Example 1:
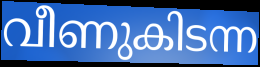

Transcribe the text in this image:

വീണുകിടന്ന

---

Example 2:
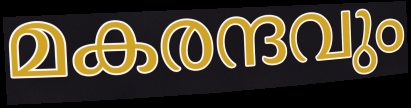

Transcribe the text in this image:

മകരന്ദവും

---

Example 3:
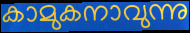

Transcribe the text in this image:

കാമുകനാവുന്നു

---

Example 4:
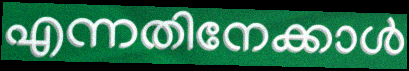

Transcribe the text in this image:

എന്നതിനേക്കാൾ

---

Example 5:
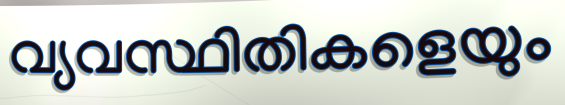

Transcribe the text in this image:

വ്യവസ്ഥിതികളെയും